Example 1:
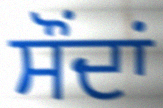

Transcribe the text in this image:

ਸੌਂਦਾਂ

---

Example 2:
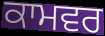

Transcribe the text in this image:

ਕਾਮਵਰ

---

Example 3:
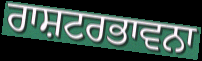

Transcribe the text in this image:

ਰਾਸ਼ਟਰਭਾਵਨਾ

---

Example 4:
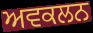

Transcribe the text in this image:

ਅਵਕਲਨ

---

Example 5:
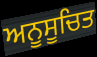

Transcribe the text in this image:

ਅਨੂਸੂਚਿਤ